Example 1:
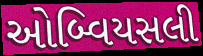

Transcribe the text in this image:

ઓબ્વિયસલી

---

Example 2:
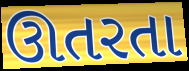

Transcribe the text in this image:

ઊતરતા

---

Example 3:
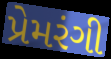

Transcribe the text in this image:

પ્રેમરંગી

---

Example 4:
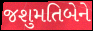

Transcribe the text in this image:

જશુમતિબેને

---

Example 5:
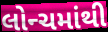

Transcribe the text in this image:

લોન્ચમાંથી